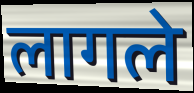
लागले